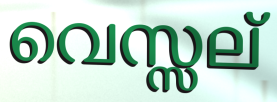
വെസ്സല്